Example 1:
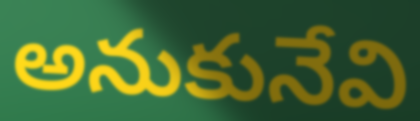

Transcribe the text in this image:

అనుకునేవి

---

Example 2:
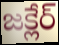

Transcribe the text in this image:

జక్లేర్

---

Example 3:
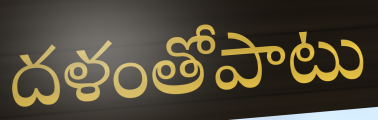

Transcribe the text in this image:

దళంతోపాటు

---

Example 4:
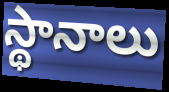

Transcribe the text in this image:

స్థానాలు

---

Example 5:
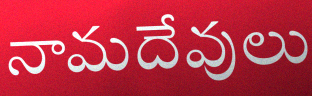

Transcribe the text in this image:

నామదేవులు